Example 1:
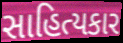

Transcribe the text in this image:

સાહિત્યકાર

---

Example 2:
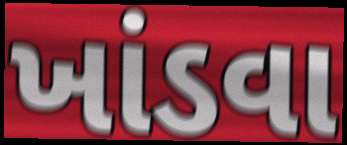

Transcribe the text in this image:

ખાંડવા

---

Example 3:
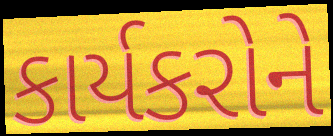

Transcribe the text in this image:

કાર્યકરોને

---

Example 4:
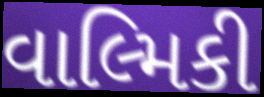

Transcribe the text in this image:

વાલ્મિકી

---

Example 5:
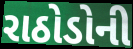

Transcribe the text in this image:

રાઠોડોની